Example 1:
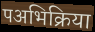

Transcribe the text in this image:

पअभिक्रिया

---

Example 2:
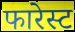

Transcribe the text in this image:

फारेस्ट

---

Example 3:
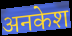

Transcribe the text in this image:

अनकेश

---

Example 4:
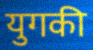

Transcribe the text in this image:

युगकी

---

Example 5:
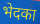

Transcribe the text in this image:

भेदका